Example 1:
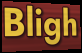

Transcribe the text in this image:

Bligh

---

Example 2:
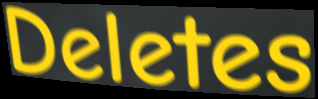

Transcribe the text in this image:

Deletes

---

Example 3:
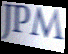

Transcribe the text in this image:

JPM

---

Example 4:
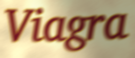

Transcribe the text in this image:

Viagra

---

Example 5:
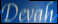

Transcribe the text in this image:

Devah